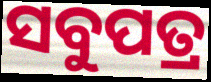
ସବୁପତ୍ର